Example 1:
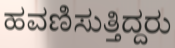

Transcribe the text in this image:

ಹವಣಿಸುತ್ತಿದ್ದರು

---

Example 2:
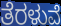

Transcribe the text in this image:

ತೆರಳುವೆ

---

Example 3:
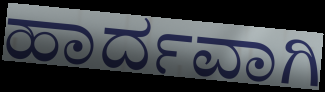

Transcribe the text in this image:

ಹಾರ್ದವಾಗಿ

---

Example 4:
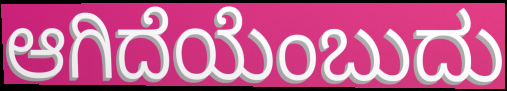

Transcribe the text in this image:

ಆಗಿದೆಯೆಂಬುದು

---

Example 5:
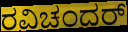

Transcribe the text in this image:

ರವಿಚಂದರ್